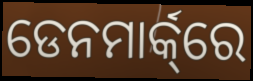
ଡେନମାର୍କ୍‌ରେ